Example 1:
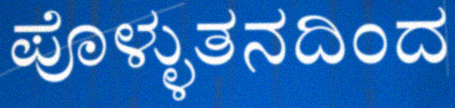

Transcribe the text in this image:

ಪೊಳ್ಳುತನದಿಂದ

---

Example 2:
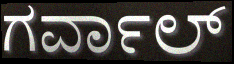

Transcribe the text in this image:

ಗರ್ವಾಲ್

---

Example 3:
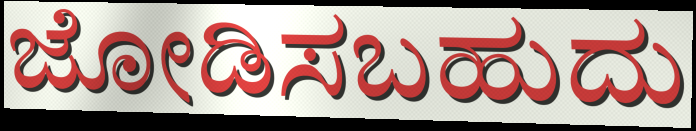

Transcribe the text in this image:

ಜೋಡಿಸಬಹುದು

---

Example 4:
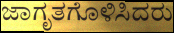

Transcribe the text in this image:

ಜಾಗೃತಗೊಳಿಸಿದರು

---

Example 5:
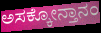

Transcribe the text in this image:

ಅಸಕ್ಕೋನ್ತಾನಂ